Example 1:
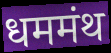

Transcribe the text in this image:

धममंथ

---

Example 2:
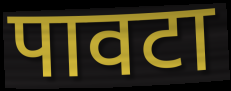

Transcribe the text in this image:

पावटा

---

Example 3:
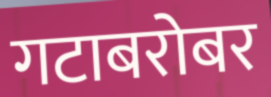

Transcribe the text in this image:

गटाबरोबर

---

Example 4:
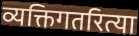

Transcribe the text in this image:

व्यक्तिगतरित्या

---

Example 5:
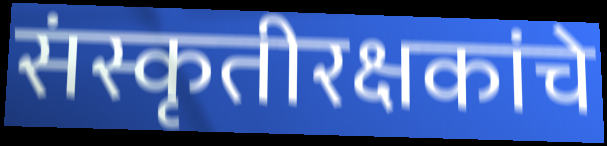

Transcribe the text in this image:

संस्कृतीरक्षकांचे